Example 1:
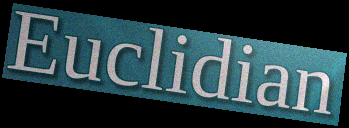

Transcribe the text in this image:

Euclidian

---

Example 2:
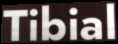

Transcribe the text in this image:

Tibial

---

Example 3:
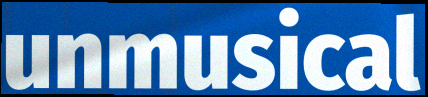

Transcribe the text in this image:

unmusical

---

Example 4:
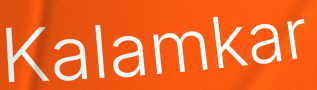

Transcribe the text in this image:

Kalamkar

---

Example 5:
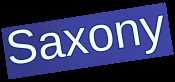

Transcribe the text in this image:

Saxony